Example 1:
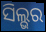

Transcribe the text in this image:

ସିଲ୍ଭର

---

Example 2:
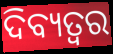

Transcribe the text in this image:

ଦିବ୍ୟତ୍ବର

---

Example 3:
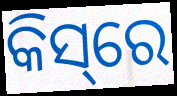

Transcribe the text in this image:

କିସ୍‌ରେ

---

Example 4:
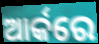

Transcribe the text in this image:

ଆର୍କରେ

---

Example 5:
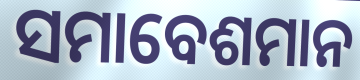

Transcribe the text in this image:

ସମାବେଶମାନ